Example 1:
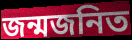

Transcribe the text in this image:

জন্মজনিত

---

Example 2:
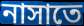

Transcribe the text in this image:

নাসাতে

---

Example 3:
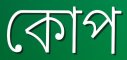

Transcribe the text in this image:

কোপ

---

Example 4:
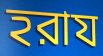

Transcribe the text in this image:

হরায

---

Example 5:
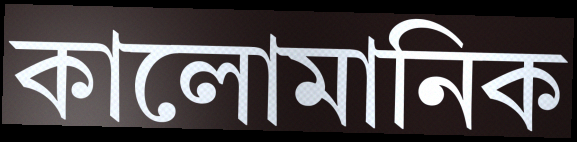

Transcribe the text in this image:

কালোমানিক